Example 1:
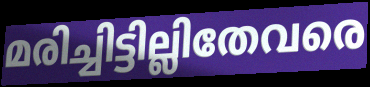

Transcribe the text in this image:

മരിച്ചിട്ടില്ലിതേവരെ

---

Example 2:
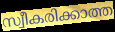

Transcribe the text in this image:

സ്വീകരിക്കാത്ത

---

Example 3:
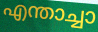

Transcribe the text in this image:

എന്താച്ചാ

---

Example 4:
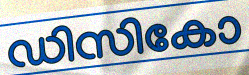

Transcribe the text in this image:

ഡിസികോ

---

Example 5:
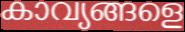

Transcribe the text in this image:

കാവ്യങ്ങളെ